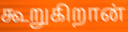
கூறுகிறான்